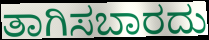
ತಾಗಿಸಬಾರದು